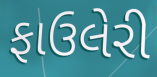
ફાઉલેરી